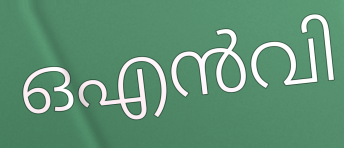
ഒഎൻവി